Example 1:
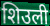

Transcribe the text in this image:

शिउली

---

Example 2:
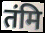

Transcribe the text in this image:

तंमि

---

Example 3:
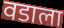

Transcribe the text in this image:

वडाला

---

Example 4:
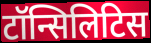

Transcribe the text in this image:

टॉन्सिलिटिस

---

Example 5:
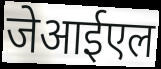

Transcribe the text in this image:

जेआईएल